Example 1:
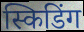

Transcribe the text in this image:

स्किडिंग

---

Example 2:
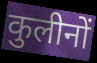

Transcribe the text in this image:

कुलीनों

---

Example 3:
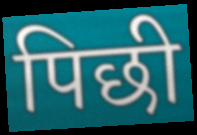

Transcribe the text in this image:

पिछी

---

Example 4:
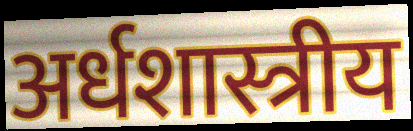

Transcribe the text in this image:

अर्धशास्त्रीय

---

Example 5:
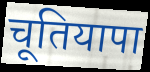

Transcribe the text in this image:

चूतियापा